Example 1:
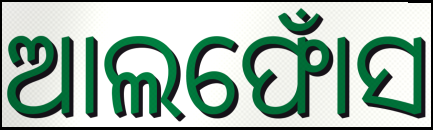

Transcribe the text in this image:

ଆଲଫୋଁସ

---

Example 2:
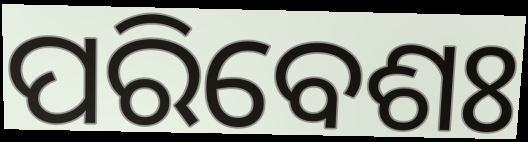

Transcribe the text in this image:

ପରିବେଶଃ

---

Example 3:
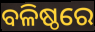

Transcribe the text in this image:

ବଳିଷ୍ଠରେ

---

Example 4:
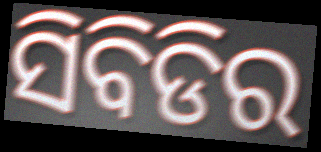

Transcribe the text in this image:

ସିବିଡିର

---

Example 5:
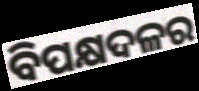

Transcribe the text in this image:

ବିପକ୍ଷଦଳର